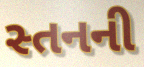
સ્તનની